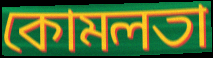
কোমলতা